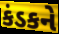
કંડકને